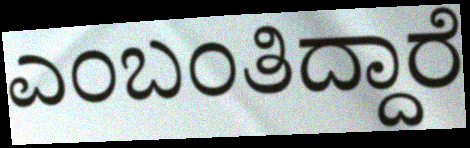
ಎಂಬಂತಿದ್ದಾರೆ